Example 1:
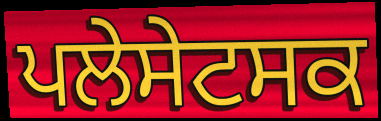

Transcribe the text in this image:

ਪਲੇਸੇਟਸਕ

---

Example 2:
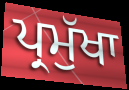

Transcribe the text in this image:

ਪ੍ਰਮੁੱਖਾ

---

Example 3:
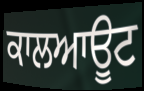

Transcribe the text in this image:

ਕਾਲਆਊਟ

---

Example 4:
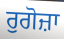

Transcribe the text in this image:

ਰੁਗੋਜ਼ਾ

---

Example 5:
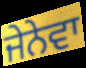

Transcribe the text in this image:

ਜੇਨੇਵਾ